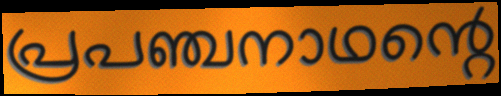
പ്രപഞ്ചനാഥന്റെ